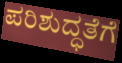
ಪರಿಶುದ್ಧತೆಗೆ